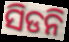
ସିଡନି